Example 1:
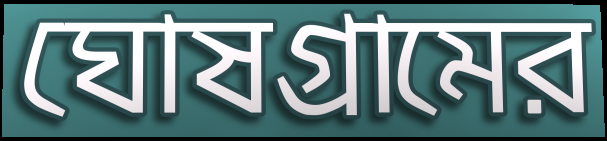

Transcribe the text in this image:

ঘোষগ্রামের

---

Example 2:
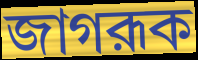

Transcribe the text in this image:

জাগরূক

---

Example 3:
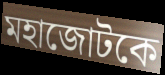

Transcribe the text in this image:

মহাজোটকে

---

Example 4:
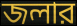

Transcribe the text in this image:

জলার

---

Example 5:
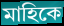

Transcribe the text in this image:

মাহিকে